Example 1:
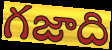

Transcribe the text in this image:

గజాది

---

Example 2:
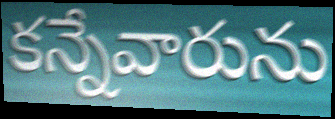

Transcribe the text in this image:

కన్నేవారును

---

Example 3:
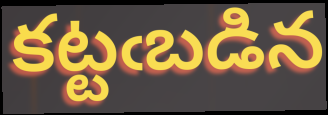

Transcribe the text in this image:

కట్టఁబడిన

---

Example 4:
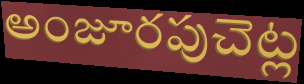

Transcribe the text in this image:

అంజూరపుచెట్ల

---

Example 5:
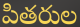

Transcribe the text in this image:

పితరుల